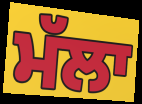
ਮੱਲਾ